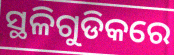
ସ୍ଥଳିଗୁଡିକରେ